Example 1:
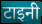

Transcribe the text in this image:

टाइनी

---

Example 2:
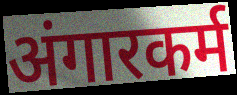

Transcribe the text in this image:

अंगारकर्म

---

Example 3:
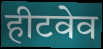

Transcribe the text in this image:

हीटवेव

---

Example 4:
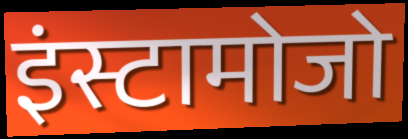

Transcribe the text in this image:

इंस्टामोजो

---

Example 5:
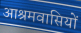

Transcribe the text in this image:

आश्रमवासियों